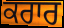
ਕਰਾਰ